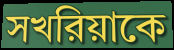
সখরিয়াকে